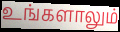
உங்களாலும்